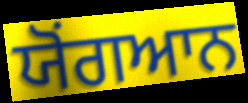
ਯੋਂਗਆਨ